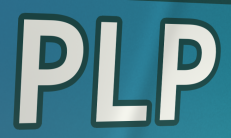
PLP